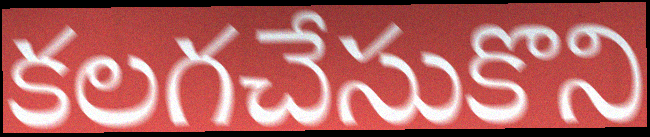
కలగచేసుకొని